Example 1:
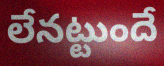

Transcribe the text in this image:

లేనట్టుందే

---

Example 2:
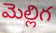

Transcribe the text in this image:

మెల్లిగ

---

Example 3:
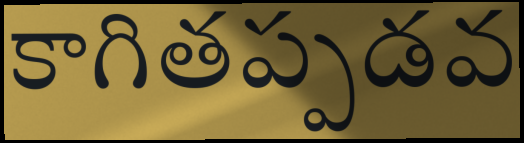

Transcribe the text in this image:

కాగితప్పడవ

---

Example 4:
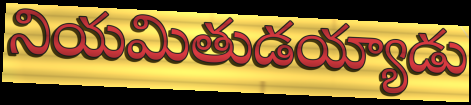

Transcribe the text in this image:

నియమితుడయ్యాడు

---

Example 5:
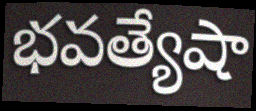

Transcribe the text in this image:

భవత్యేషా